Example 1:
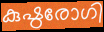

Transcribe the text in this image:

കുഷ്ഠരോഗി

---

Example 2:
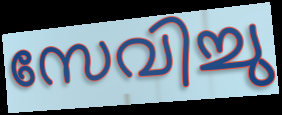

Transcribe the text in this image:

സേവിച്ചു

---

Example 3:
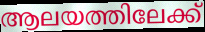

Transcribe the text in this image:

ആലയത്തിലേക്ക്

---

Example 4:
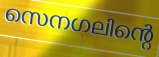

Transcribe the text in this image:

സെനഗലിന്റെ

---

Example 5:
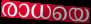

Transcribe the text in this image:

രാധയെ